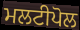
ਮਲਟੀਪੋਲ